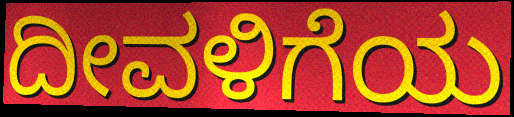
ದೀವಳಿಗೆಯ